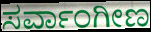
ಸರ್ವಾಂಗೀಣ